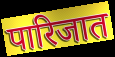
पारिजात